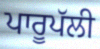
ਪਾਰੂਪੱਲੀ